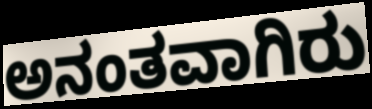
ಅನಂತವಾಗಿರು